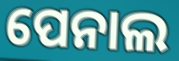
ପେନାଲ